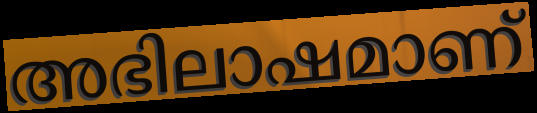
അഭിലാഷമാണ്